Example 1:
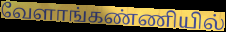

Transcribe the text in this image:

வேளாங்கண்ணியில்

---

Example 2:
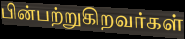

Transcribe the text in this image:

பின்பற்றுகிறவர்கள்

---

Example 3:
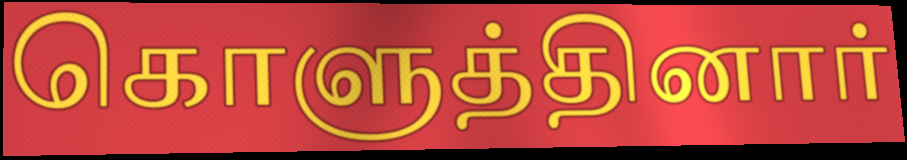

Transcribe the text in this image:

கொளுத்தினார்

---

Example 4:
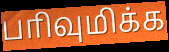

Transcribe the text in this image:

பரிவுமிக்க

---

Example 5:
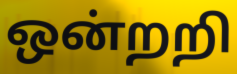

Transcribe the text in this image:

ஒன்றறி